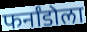
फर्नांडोला